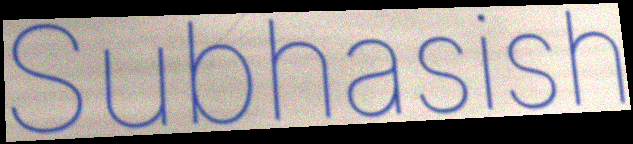
Subhasish